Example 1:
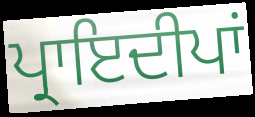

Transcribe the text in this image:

ਪ੍ਰਾਇਦੀਪਾਂ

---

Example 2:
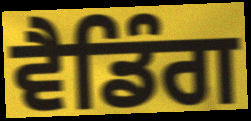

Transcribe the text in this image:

ਵੈਡਿੰਗ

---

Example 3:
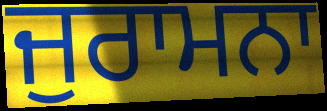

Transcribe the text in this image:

ਜੁਰਾਮਨਾ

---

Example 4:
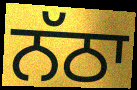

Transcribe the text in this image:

ਨੱਠਾ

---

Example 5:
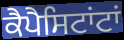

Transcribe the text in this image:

ਕੈਪੈਸਿਟਾਂਟਾਂ